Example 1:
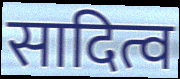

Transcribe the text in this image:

सादित्व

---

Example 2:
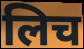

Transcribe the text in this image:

लिच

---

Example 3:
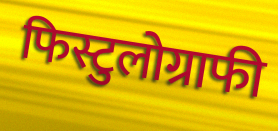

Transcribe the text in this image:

फिस्टुलोग्राफी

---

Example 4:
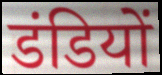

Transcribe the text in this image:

डंडियों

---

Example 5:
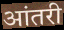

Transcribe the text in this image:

आंतरी